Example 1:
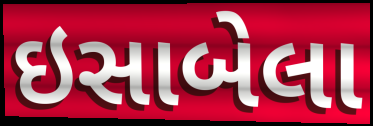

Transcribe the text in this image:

ઇસાબેલા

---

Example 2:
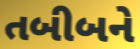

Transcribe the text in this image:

તબીબને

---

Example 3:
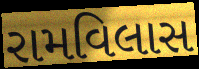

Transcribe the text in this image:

રામવિલાસ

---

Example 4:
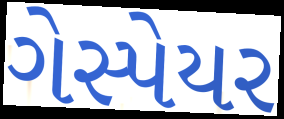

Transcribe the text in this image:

ગેસ્પેયર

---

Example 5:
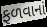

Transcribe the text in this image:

ફળવાનાં